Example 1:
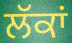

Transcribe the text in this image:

ਲੱਕਾਂ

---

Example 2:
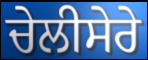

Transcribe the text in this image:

ਚੇਲੀਸੇਰੇ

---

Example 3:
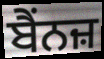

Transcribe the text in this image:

ਬੈਂਨਜ਼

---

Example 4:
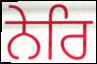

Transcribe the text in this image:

ਨੇਰਿ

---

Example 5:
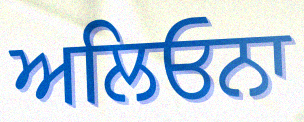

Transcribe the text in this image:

ਅਲਿਓਨਾ